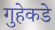
गुहेकडे